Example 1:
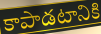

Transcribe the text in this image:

కాపాడటానికి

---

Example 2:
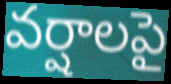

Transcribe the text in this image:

వర్షాలపై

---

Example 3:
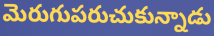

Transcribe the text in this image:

మెరుగుపరుచుకున్నాడు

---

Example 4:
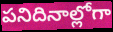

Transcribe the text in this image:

పనిదినాల్లోగా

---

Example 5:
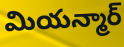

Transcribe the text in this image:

మియన్మార్